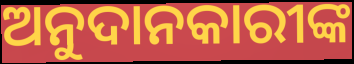
ଅନୁଦାନକାରୀଙ୍କ